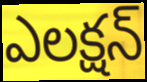
ఎలక్షన్